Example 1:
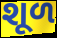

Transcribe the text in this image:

શૂળ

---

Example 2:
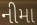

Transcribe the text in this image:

નીમા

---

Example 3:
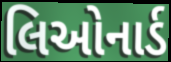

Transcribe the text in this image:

લિઓનાર્ડ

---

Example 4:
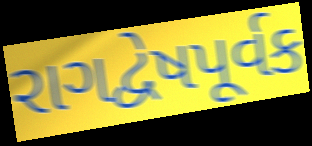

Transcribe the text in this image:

રાગદ્વેષપૂર્વક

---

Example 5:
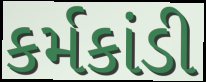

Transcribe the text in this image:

કર્મકાંડી